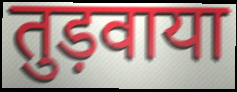
तुड़वाया